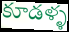
కూడళ్ళ